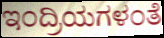
ಇಂದ್ರಿಯಗಳಂತೆ